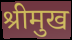
श्रीमुख